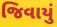
જિવાયું